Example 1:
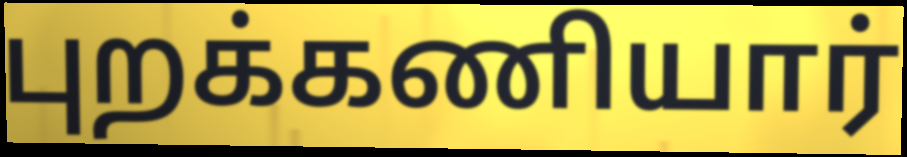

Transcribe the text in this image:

புறக்கணியார்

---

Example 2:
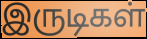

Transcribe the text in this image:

இருடிகள்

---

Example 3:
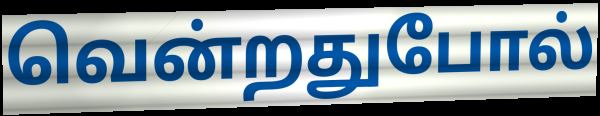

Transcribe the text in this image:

வென்றதுபோல்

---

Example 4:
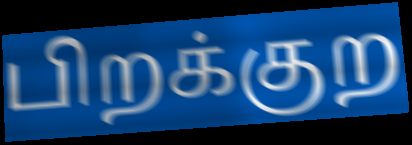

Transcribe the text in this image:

பிறக்குற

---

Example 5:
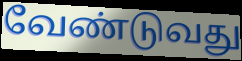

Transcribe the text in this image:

வேண்டுவது